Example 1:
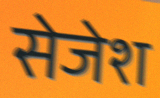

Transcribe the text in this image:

सेजेश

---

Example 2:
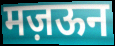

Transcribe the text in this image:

मज़ऊन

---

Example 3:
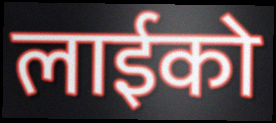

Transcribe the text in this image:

लाईको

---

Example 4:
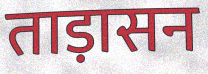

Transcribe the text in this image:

ताड़ासन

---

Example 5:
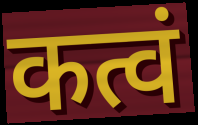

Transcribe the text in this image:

कत्वं